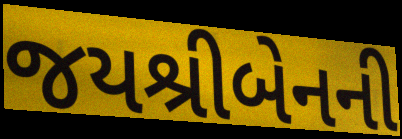
જયશ્રીબેનની